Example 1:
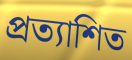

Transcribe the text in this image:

প্ৰত্যাশিত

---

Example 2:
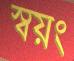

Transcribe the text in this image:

স্বয়ং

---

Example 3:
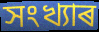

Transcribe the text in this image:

সংখ্যাৰ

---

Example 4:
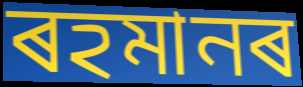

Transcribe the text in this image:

ৰহমানৰ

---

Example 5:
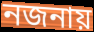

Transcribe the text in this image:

নজনায়